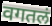
वगतलं